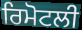
ਰਿਮੋਟਲੀ